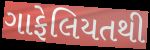
ગાફેલિયતથી